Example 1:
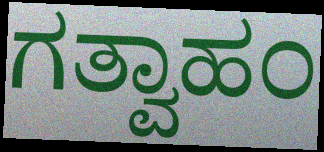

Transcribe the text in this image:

ಗತ್ವಾಹಂ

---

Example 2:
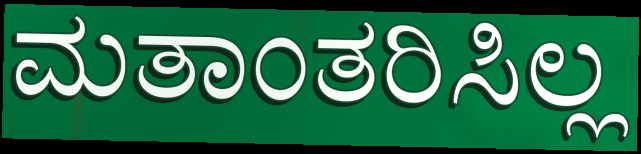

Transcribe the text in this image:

ಮತಾಂತರಿಸಿಲ್ಲ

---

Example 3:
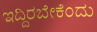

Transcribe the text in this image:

ಇದ್ದಿರಬೇಕೆಂದು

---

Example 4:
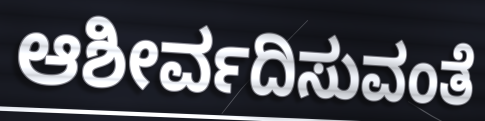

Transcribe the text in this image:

ಆಶೀರ್ವದಿಸುವಂತೆ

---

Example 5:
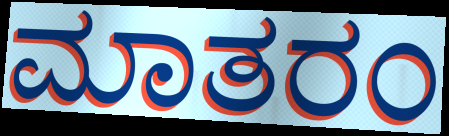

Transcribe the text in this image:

ಮಾತರಂ